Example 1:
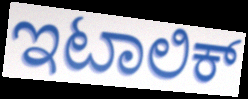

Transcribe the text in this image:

ಇಟಾಲಿಕ್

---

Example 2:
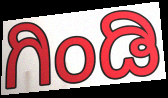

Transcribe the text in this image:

ಗಿಂಡಿ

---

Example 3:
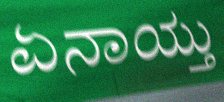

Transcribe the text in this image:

ಏನಾಯ್ತು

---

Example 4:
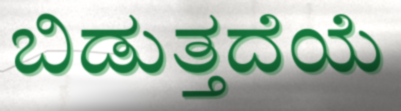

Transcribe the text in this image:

ಬಿಡುತ್ತದೆಯೆ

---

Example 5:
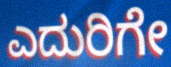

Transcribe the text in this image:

ಎದುರಿಗೇ